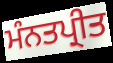
ਮੰਨਤਪ੍ਰੀਤ